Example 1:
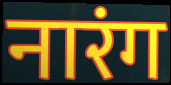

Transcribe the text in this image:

नारंग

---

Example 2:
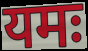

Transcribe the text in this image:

यमः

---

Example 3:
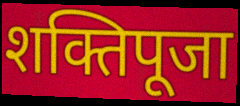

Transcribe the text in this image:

शक्तिपूजा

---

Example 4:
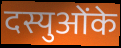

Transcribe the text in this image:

दस्युओंके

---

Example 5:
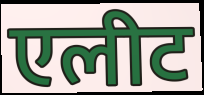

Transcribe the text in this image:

एलीट